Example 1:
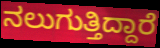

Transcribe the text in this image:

ನಲುಗುತ್ತಿದ್ದಾರೆ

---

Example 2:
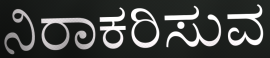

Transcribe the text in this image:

ನಿರಾಕರಿಸುವ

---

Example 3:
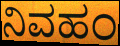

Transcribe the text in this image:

ನಿವಹಂ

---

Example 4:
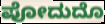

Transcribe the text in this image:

ಪೋದುದೊ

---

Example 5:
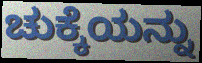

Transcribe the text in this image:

ಚುಕ್ಕೆಯನ್ನು